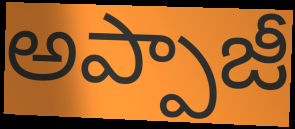
అప్పాజీ